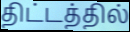
திட்டத்தில்